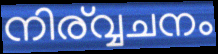
നിര്വ്വചനം